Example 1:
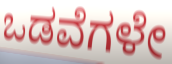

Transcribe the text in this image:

ಒಡವೆಗಳೇ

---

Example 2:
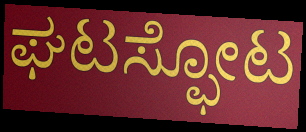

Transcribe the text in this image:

ಘಟಸ್ಫೋಟ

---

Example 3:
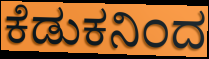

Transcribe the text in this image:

ಕೆಡುಕನಿಂದ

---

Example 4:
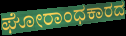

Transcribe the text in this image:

ಘೋರಾಂಧಕಾರದ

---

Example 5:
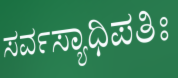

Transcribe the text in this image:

ಸರ್ವಸ್ಯಾಧಿಪತಿಃ